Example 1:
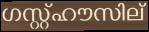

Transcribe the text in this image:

ഗസ്റ്റ്ഹൗസില്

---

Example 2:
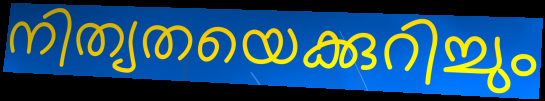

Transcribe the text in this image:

നിത്യതയെക്കുറിച്ചും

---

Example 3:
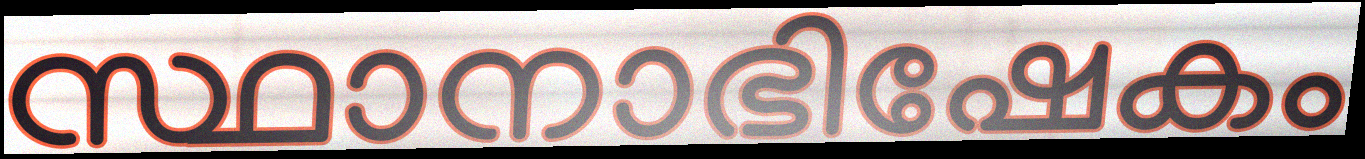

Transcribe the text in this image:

സ്ഥാനാഭിഷേകം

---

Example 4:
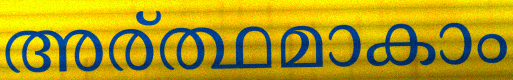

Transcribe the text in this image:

അര്ത്ഥമാകാം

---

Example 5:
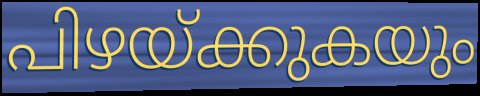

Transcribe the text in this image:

പിഴയ്ക്കുകയും